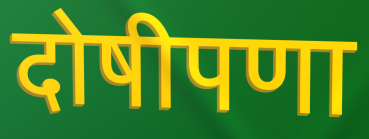
दोषीपणा